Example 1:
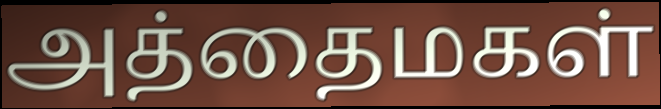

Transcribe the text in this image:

அத்தைமகள்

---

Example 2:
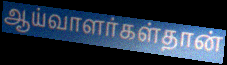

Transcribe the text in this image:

ஆய்வாளர்கள்தான்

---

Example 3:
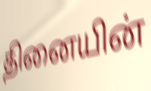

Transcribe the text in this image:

தினையின்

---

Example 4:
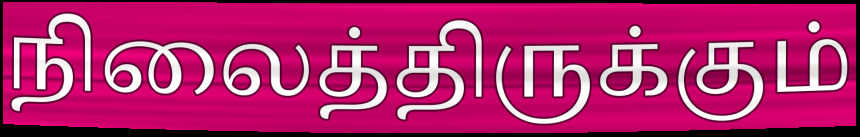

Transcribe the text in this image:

நிலைத்திருக்கும்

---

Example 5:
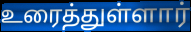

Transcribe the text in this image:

உரைத்துள்ளார்